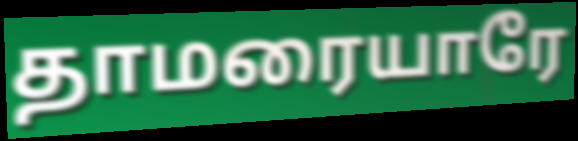
தாமரையாரே